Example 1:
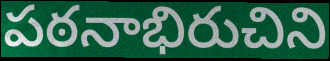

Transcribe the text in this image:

పఠనాభిరుచిని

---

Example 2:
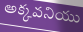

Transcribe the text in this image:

అక్కవనియు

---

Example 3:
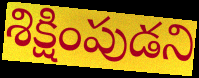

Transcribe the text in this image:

శిక్షింపుడని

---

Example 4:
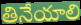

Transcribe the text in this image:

తినేయాలి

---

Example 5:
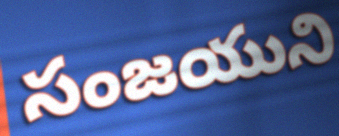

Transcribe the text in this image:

సంజయుని